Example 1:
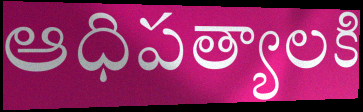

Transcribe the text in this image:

ఆధిపత్యాలకి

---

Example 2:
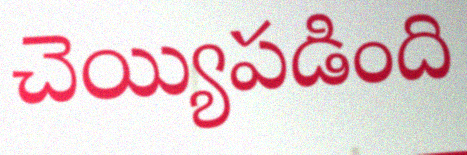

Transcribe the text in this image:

చెయ్యిపడింది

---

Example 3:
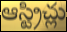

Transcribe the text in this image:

ఆస్ట్రిచ్లు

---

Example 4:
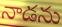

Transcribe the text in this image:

నాడను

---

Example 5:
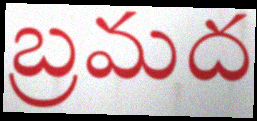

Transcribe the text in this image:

బ్రమద